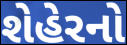
શેહેરનો